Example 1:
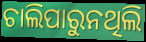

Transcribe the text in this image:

ଚାଲିପାରୁନଥିଲି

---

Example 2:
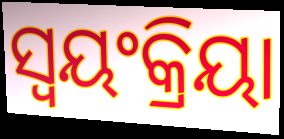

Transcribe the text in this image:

ସ୍ବୟଂକ୍ରିୟା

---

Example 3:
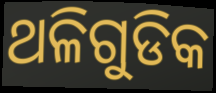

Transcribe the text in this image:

ଥଳିଗୁଡିକ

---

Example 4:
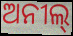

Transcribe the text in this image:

ଅନୀଲ୍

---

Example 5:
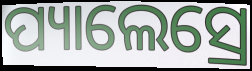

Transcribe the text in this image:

ପ୍ୟାଲେସ୍ରେ